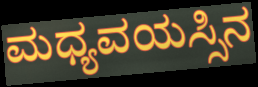
ಮಧ್ಯವಯಸ್ಸಿನ